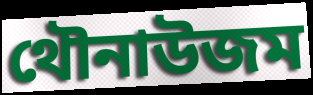
থৌনাউজম